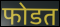
फोडत